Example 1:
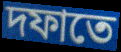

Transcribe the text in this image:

দফাতে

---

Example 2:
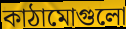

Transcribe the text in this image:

কাঠামোগুলো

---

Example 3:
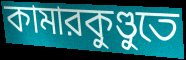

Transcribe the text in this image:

কামারকুণ্ডুতে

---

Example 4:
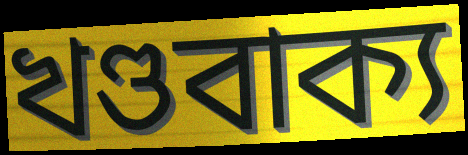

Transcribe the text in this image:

খণ্ডবাক্য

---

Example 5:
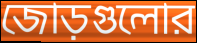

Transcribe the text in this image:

জোড়গুলোর